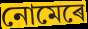
নোমেৰে